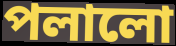
পলালো